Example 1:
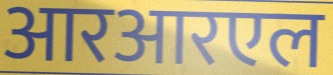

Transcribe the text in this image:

आरआरएल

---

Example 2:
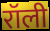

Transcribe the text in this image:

रॉली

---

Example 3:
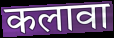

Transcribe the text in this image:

कलावा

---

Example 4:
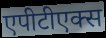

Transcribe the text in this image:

एपीटीएक्स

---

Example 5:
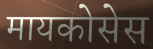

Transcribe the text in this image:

मायकोसेस